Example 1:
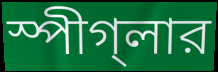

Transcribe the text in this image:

স্পীগ্‌লার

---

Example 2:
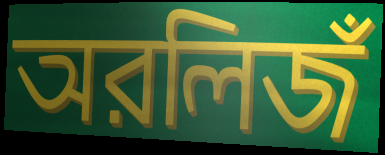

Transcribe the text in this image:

অরলিজঁ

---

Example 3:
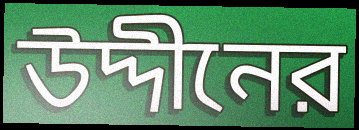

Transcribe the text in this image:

উদ্দীনের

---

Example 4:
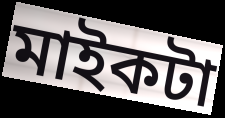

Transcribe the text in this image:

মাইকটা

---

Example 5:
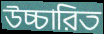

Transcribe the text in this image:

উচ্চারিত